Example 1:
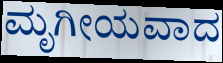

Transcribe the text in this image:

ಮೃಗೀಯವಾದ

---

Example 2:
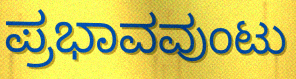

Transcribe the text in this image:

ಪ್ರಭಾವವುಂಟು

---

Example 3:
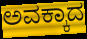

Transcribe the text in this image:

ಅವಕ್ಕಾದ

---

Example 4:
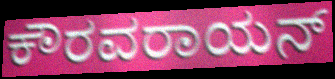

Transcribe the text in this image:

ಕೌರವರಾಯನ್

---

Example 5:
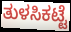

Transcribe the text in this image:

ತುಳಸಿಕಟ್ಟೆ